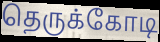
தெருக்கோடி